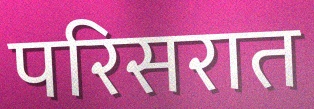
परिसरात